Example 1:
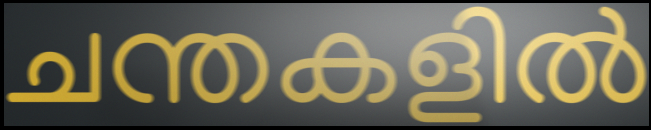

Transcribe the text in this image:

ചന്തകളിൽ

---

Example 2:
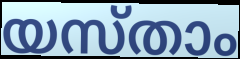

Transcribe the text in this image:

യസ്താം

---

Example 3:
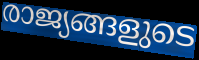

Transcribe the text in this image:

രാജ്യങ്ങളുടെ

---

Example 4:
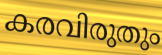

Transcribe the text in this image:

കരവിരുതും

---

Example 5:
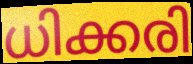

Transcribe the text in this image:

ധിക്കരി